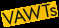
VAWTs